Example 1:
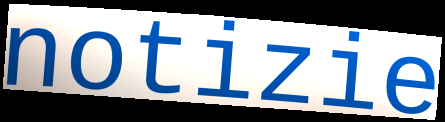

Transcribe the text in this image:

notizie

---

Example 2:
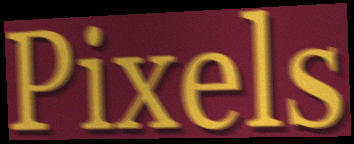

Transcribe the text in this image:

Pixels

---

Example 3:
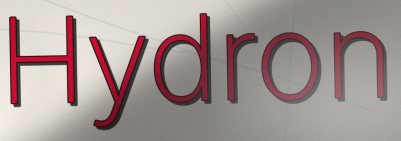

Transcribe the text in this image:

Hydron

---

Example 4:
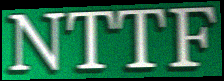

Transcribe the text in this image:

NTTF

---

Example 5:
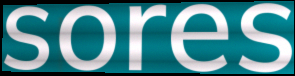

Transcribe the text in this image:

sores